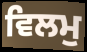
ਵਿਲਮੁ